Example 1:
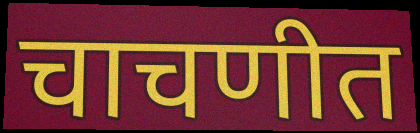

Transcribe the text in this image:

चाचणीत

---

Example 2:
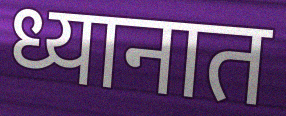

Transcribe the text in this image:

ध्यानात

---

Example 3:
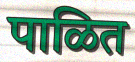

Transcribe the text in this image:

पाळित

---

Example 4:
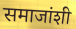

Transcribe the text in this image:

समाजांशी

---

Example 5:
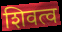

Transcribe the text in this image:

शिवत्व